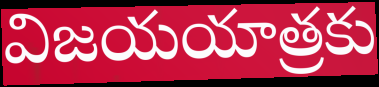
విజయయాత్రకు